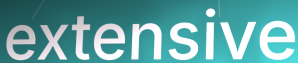
extensive